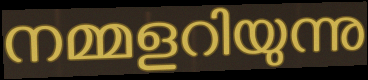
നമ്മളറിയുന്നു